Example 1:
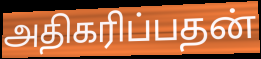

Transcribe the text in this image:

அதிகரிப்பதன்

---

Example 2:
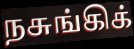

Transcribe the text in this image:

நசுங்கிக்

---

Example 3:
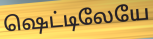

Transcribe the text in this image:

ஷெட்டிலேயே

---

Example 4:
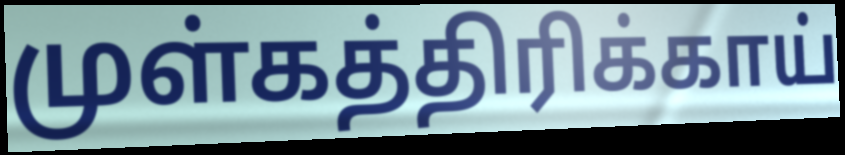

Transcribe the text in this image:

முள்கத்திரிக்காய்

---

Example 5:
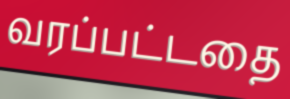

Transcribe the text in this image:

வரப்பட்டதை